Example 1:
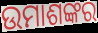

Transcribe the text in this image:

ଉମାଶଙ୍କର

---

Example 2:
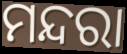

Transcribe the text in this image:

ମନ୍ଦରା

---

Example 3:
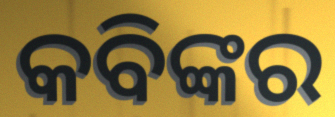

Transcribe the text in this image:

କବିଙ୍କର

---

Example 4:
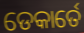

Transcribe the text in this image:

ଡେକାର୍ତେ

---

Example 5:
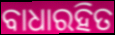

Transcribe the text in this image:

ବାଧାରହିତ